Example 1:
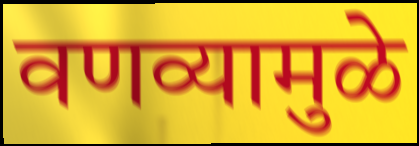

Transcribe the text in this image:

वणव्यामुळे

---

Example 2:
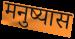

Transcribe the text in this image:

मनुष्यास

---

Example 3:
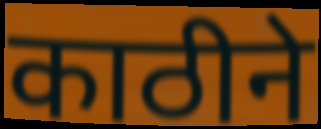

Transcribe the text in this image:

काठीने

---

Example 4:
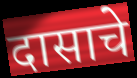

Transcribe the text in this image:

दासाचे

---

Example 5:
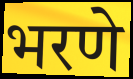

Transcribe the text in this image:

भरणे